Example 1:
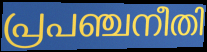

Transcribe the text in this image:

പ്രപഞ്ചനീതി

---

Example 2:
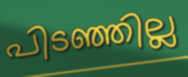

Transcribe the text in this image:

പിടഞ്ഞില്ല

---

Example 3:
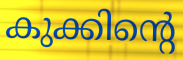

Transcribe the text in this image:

കുക്കിന്റെ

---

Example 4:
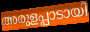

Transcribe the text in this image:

അരുളപ്പാടായി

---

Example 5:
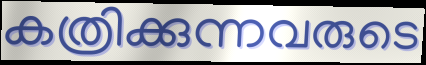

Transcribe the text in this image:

കത്രിക്കുന്നവരുടെ